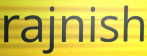
rajnish